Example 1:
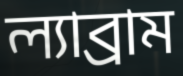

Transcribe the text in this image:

ল্যাব্রাম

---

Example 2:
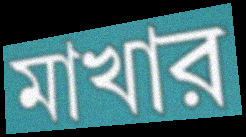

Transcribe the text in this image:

মাখার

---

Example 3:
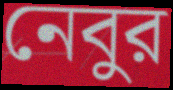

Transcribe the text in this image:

নেবুর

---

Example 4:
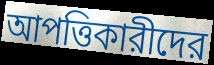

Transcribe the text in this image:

আপত্তিকারীদের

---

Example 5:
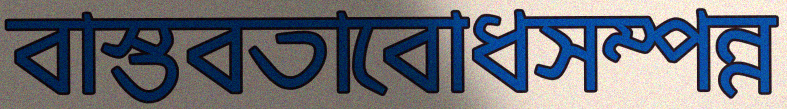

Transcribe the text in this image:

বাস্তবতাবোধসম্পন্ন